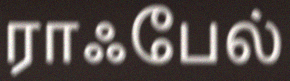
ராஃபேல்